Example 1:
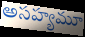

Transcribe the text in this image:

అసహ్యమూ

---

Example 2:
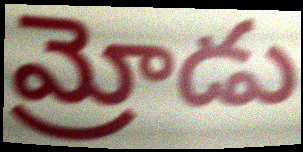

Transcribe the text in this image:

మ్రోడు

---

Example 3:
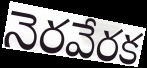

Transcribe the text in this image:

నెరవేరక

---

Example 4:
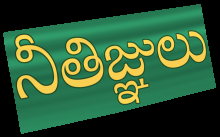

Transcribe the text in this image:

నీతిజ్ఞులు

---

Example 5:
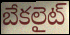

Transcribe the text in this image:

బేకలైట్